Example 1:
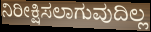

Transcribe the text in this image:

ನಿರೀಕ್ಷಿಸಲಾಗುವುದಿಲ್ಲ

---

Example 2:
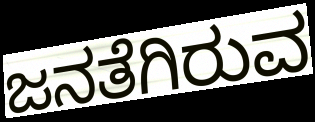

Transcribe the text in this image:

ಜನತೆಗಿರುವ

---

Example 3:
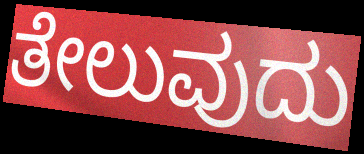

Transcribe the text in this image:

ತೇಲುವುದು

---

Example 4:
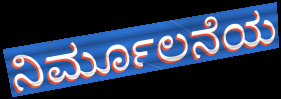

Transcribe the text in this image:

ನಿರ್ಮೂಲನೆಯ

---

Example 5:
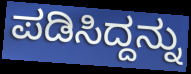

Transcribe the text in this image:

ಪಡಿಸಿದ್ದನ್ನು